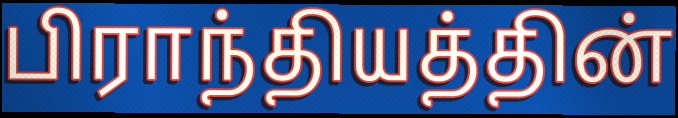
பிராந்தியத்தின்